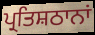
ਪ੍ਰਤਿਸ਼ਠਾਨਾਂ